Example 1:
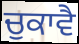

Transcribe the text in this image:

ਚੁਕਾਵੈ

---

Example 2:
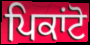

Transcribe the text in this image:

ਪਿਕਾਂਟੋ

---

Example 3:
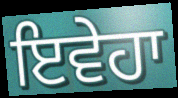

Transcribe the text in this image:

ਇਵੇਹਾ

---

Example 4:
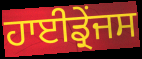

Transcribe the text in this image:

ਹਾਈਡ੍ਰੇਂਜਸ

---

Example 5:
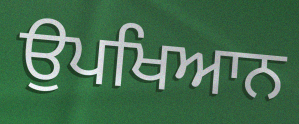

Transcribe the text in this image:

ਉਪਖਿਆਨ